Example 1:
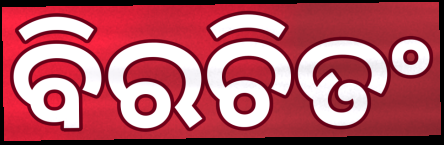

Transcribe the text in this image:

ବିରଚିତଂ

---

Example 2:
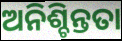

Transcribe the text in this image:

ଅନିଶ୍ଚିନ୍ତତା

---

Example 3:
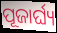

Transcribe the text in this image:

ପୂଜାର୍ଘ୍ୟ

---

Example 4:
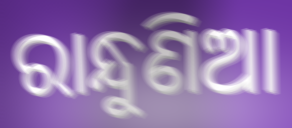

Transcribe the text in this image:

ରାନ୍ଧୁଣିଆ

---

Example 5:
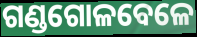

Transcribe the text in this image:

ଗଣ୍ଡଗୋଳବେଳେ